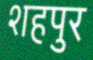
शहपुर